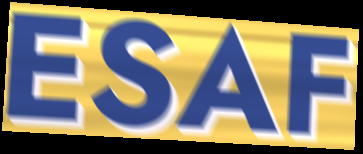
ESAF